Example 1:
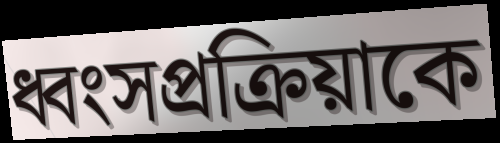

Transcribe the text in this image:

ধ্বংসপ্রক্রিয়াকে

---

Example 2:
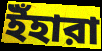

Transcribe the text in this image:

ইঁহারা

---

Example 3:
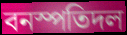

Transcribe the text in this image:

বনস্পতিদল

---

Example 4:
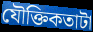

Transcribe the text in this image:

যৌক্তিকতাটা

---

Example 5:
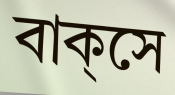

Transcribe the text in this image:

বাক্‌সে